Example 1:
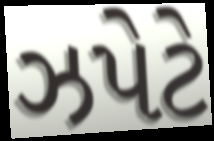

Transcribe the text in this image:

ઝપેટે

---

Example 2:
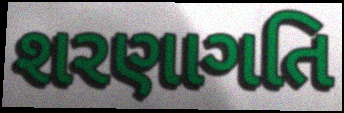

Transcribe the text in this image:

શરણાગતિ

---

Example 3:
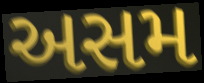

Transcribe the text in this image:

અસમ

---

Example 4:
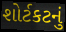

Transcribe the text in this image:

શોર્ટકટનું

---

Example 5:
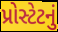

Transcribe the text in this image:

પ્રોસ્ટેટનું